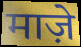
माज़े